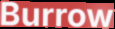
Burrow